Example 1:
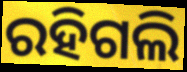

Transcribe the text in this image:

ରହିଗଲି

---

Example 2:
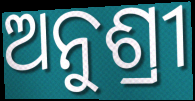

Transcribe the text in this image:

ଅନୁଶ୍ରୀ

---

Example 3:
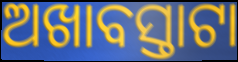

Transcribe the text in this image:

ଅଖାବସ୍ତାଟା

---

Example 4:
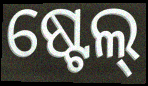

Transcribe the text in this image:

ଷ୍ଟେଲ୍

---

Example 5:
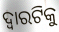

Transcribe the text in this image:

ଦ୍ଵାରଟିକୁ